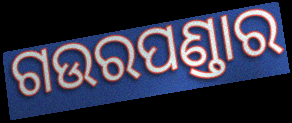
ଗଉରପଣ୍ଡାର